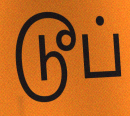
டூப்